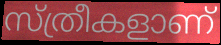
സ്ത്രീകളാണ്